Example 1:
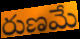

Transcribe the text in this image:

రుణమే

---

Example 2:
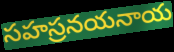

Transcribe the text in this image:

సహస్రనయనాయ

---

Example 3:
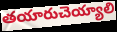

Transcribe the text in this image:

తయారుచెయ్యాలి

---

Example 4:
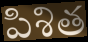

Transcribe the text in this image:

పిశిత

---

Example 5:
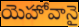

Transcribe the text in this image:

యెహోవానై